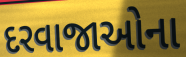
દરવાજાઓના